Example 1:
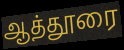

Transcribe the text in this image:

ஆத்தூரை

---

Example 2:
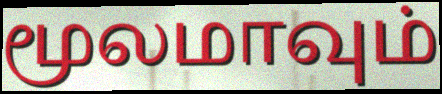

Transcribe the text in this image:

மூலமாவும்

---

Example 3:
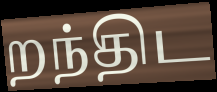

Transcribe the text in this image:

றந்திட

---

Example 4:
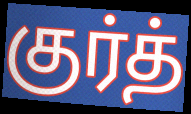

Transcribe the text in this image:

குர்த்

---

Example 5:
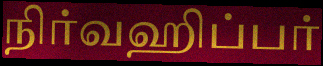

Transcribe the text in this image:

நிர்வஹிப்பர்